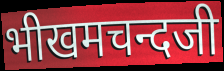
भीखमचन्दजी